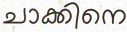
ചാക്കിനെ